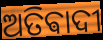
ଅତିଵାଦୀ